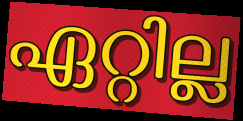
ഏറ്റില്ല